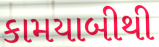
કામયાબીથી